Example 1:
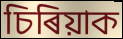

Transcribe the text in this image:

চিৰিয়াক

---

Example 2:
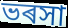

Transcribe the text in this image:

ভৰসা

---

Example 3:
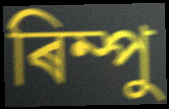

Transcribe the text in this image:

ৰিম্পু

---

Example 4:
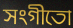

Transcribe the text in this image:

সংগীতো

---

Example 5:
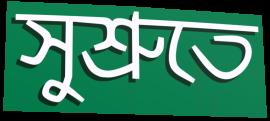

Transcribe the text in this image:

সুশ্ৰুতে